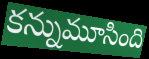
కన్నుమూసింది